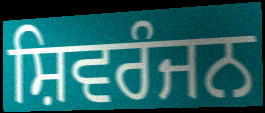
ਸ਼ਿਵਰੰਜਨ